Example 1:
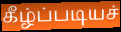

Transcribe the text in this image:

கீழ்ப்படியச்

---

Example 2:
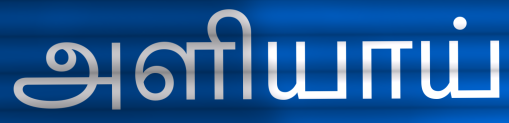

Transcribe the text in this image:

அளியாய்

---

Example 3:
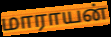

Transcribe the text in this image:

மாராயன்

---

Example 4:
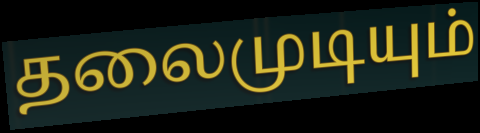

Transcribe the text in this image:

தலைமுடியும்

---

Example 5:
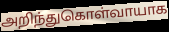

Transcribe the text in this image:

அறிந்துகொள்வாயாக